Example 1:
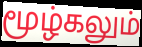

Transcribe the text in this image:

மூழ்கலும்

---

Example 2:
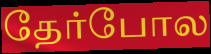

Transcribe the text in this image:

தேர்போல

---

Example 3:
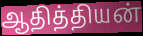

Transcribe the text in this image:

ஆதித்தியன்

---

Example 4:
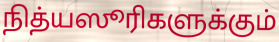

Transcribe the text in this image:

நித்யஸூரிகளுக்கும்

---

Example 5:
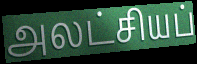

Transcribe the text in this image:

அலட்சியப்